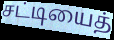
சட்டியைத்